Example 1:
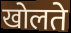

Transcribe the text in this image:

खोलते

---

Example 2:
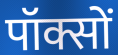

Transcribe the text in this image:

पॉक्सों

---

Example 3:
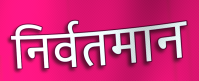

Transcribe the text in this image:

निर्वतमान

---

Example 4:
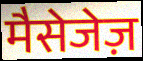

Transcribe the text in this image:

मैसेजेज़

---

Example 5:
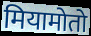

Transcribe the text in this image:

मियामोतो